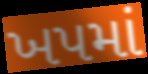
ખપમાં